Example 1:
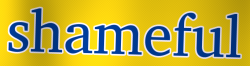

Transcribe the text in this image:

shameful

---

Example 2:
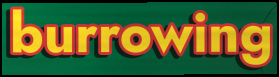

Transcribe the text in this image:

burrowing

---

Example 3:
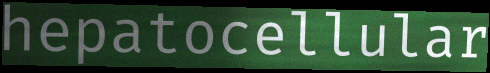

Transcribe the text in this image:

hepatocellular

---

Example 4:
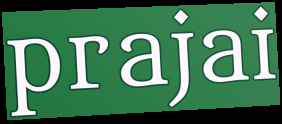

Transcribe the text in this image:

prajai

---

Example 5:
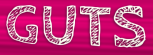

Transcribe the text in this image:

GUTS